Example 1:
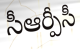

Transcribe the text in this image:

సీఆర్పీసీ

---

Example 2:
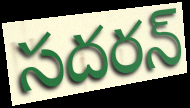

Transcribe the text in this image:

సదరన్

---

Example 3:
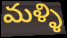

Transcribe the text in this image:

మళ్ళి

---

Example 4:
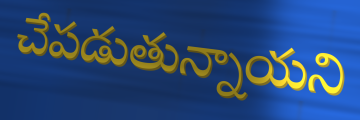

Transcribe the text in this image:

చేపడుతున్నాయని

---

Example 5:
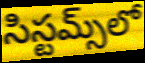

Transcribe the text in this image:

సిస్టమ్స్‌లో